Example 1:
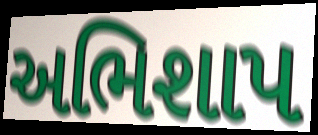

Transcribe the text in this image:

અભિશાપ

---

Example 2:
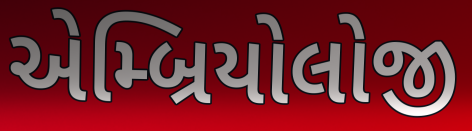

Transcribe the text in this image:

એમ્બ્રિયોલોજી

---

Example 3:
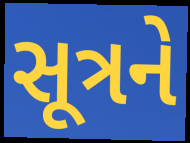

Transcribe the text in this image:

સૂત્રને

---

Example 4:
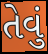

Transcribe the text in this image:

તેવું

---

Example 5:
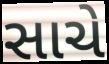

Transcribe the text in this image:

સાચે